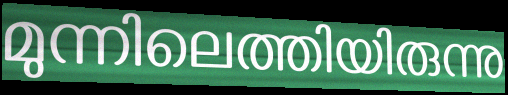
മുന്നിലെത്തിയിരുന്നു